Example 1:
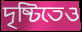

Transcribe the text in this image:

দৃষ্টিতেও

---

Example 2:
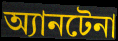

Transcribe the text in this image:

অ্যানটেনা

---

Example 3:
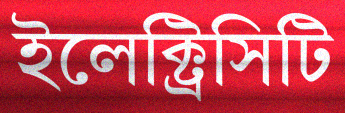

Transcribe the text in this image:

ইলেক্ট্রিসিটি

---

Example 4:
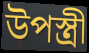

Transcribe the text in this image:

উপস্ত্রী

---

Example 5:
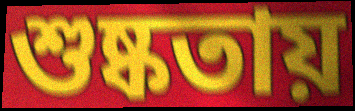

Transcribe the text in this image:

শুষ্কতায়